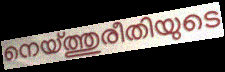
നെയ്ത്തുരീതിയുടെ